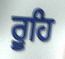
ਰੂਹਿ